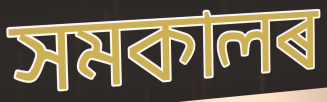
সমকালৰ